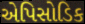
એપિસોડિક